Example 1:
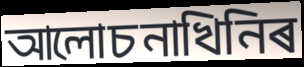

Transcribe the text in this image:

আলোচনাখিনিৰ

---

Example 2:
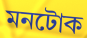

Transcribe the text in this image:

মনটোক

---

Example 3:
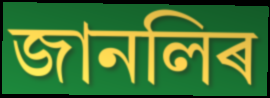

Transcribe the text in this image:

জানলিৰ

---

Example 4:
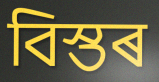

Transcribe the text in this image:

বিস্তৰ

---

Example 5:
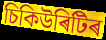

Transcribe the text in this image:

চিকিউৰিটিৰ